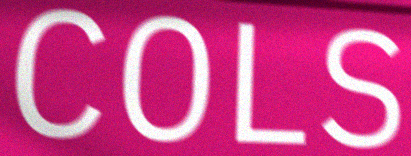
COLS